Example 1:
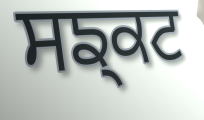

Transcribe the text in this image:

ਸਙ੍ਕਟ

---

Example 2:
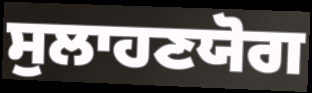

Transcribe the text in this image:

ਸੁਲਾਹਣਯੋਗ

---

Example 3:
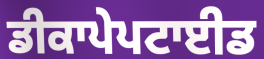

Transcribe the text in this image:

ਡੀਕਾਪੇਪਟਾਈਡ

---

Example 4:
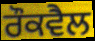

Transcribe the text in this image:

ਰੌਕਵੈਲ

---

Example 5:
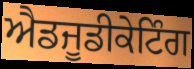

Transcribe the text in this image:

ਐਡਜੂਡੀਕੇਟਿੰਗ